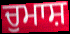
ਚੁਮਾਸ਼